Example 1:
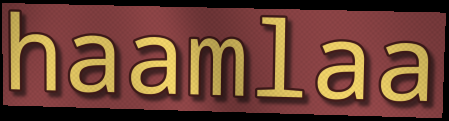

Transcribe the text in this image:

haamlaa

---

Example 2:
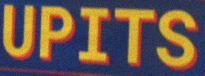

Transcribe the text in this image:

UPITS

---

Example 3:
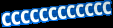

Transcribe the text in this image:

CCCCCCCCCCCC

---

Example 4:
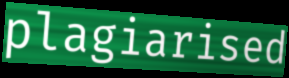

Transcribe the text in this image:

plagiarised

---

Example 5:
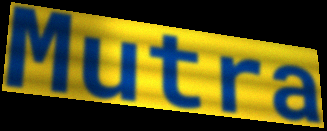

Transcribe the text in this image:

Mutra